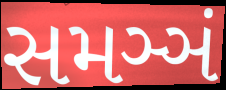
સમઞ્ઞં